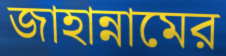
জাহান্নামের